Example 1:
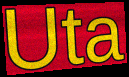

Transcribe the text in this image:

Uta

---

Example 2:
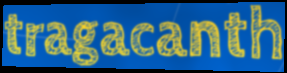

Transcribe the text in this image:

tragacanth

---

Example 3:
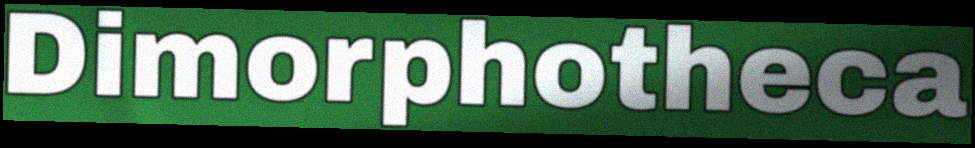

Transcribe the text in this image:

Dimorphotheca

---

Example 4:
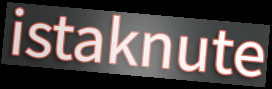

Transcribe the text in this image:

istaknute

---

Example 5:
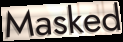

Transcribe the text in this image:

Masked